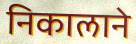
निकालाने